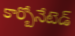
కార్బోనేటెడ్